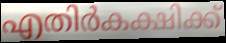
എതിർകക്ഷിക്ക്